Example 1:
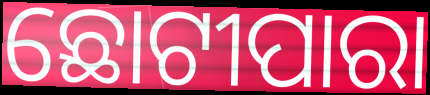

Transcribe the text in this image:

ଛୋଟୀପାରା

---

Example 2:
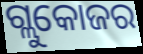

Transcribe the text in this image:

ଗ୍ଲୁକୋଜର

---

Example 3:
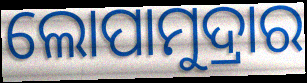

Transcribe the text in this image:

ଲୋପାମୁଦ୍ରାର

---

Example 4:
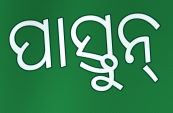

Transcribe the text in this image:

ପାସ୍ତୁନ୍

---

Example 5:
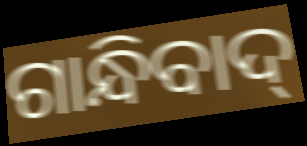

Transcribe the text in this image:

ଗାନ୍ଧିବାଦ୍